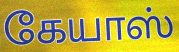
கேயாஸ்